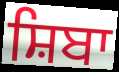
ਸ਼ਿਬਾ